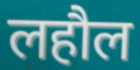
लहौल